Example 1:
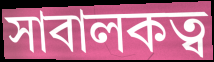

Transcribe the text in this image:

সাবালকত্ব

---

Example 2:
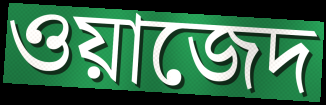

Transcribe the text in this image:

ওয়াজেদ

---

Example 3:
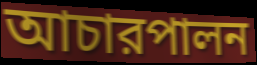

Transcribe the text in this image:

আচারপালন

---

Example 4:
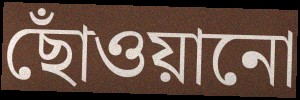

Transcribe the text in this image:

ছোঁওয়ানো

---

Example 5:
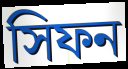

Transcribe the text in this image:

সিফন